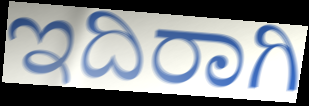
ಇದಿರಾಗಿ